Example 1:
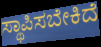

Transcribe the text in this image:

ಸ್ಥಾಪಿಸಬೇಕಿದೆ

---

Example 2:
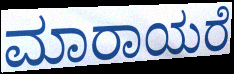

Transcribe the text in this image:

ಮಾರಾಯರೆ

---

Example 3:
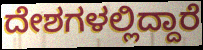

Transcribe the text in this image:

ದೇಶಗಳಲ್ಲಿದ್ದಾರೆ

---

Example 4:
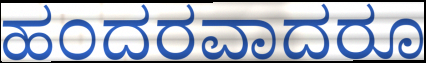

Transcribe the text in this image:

ಹಂದರವಾದರೂ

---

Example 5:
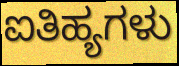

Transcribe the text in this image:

ಐತಿಹ್ಯಗಳು